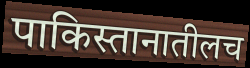
पाकिस्तानातीलच